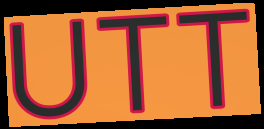
UTT